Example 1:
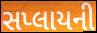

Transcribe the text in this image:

સપ્લાયની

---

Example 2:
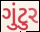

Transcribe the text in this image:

ગુંટુર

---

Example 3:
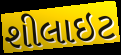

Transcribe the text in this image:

શીલાઇટ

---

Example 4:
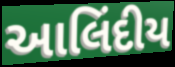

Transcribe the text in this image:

આલિંદીય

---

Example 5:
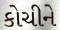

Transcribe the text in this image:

કોચીને